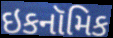
ઇકનૉમિક